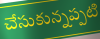
చేసుకున్నప్పటి